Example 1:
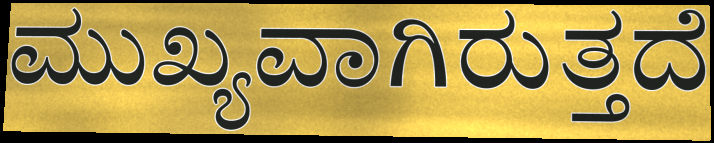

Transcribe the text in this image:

ಮುಖ್ಯವಾಗಿರುತ್ತದೆ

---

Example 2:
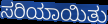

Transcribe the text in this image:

ಸರಿಯಾಯಿತು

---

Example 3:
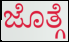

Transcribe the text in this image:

ಜೊತ್ಗೆ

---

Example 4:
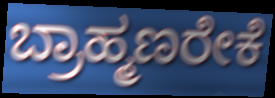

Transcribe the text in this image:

ಬ್ರಾಹ್ಮಣರೇಕೆ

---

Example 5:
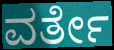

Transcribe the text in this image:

ವರ್ತೇ